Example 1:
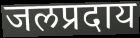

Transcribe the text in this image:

जलप्रदाय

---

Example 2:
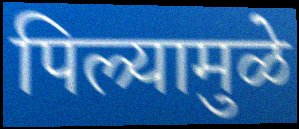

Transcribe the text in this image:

पिल्यामुळे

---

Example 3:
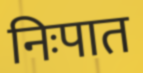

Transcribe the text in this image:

निःपात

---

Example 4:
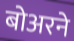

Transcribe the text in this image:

बोअरने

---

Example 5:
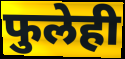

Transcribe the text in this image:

फुलेही